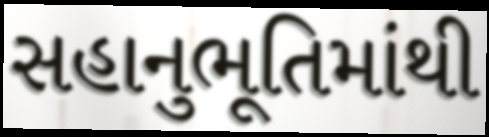
સહાનુભૂતિમાંથી